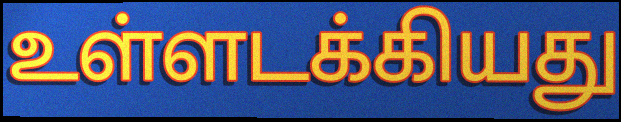
உள்ளடக்கியது